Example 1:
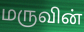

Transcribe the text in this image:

மருவின்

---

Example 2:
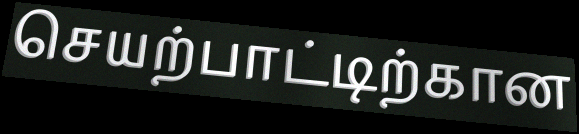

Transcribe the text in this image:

செயற்பாட்டிற்கான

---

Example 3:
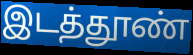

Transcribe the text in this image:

இடத்தூண்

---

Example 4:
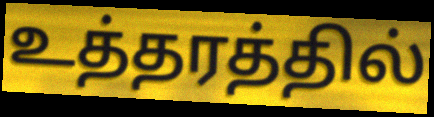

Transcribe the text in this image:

உத்தரத்தில்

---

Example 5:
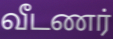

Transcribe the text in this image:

வீடணர்